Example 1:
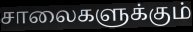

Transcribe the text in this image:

சாலைகளுக்கும்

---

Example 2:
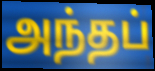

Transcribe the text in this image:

அந்தப்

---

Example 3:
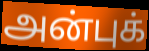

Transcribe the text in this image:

அன்புக்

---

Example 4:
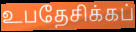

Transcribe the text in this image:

உபதேசிக்கப்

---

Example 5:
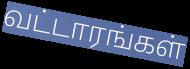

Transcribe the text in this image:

வட்டாரங்கள்